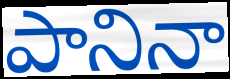
పానినా